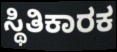
ಸ್ಥಿತಿಕಾರಕ